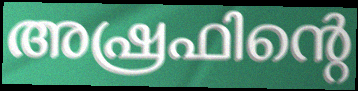
അഷ്രഫിന്റെ